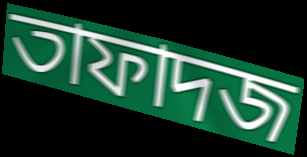
তাফাদজ